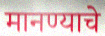
मानण्याचे